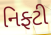
નિફ્ટી